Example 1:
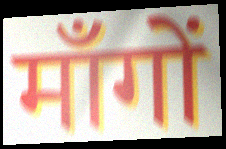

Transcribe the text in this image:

माँगों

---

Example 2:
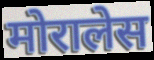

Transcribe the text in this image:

मोरालेस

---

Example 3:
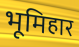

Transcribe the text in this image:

भूमिहार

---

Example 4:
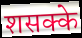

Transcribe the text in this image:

शसक्के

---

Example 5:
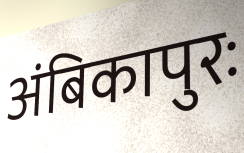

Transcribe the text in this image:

अंबिकापुरः